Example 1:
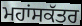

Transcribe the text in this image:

ਮਹਾਂਸਕੱਤਰ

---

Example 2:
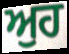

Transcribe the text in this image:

ਅੁਹ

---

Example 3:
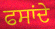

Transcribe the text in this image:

ਫਸਾਂਦੇ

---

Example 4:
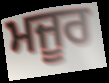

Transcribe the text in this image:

ਮਜੂਰ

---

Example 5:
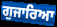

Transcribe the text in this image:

ਗੁਜਾਰਿਆ